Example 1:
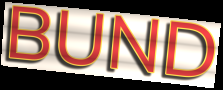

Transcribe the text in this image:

BUND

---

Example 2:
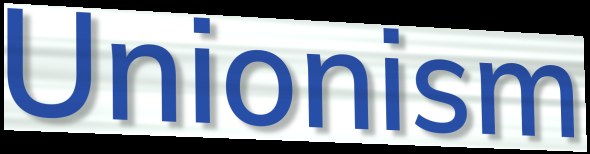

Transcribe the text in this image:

Unionism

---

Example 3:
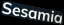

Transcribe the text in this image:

Sesamia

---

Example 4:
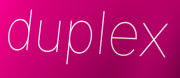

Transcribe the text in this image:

duplex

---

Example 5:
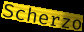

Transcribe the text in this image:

Scherzo